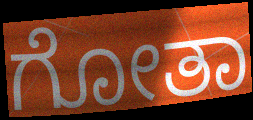
ಗೋತಾ